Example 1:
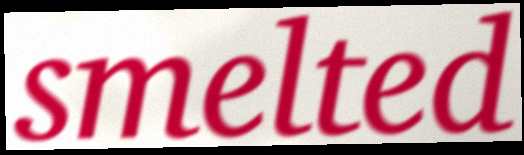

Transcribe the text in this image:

smelted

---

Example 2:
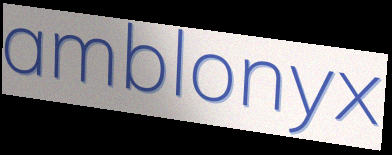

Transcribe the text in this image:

amblonyx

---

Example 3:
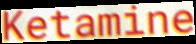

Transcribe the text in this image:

Ketamine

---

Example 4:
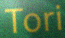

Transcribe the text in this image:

Tori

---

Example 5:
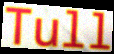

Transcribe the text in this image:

Tull